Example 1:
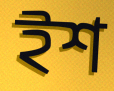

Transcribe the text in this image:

ইশ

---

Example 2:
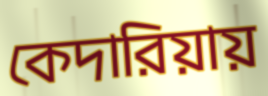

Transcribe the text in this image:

কেদারিয়ায়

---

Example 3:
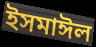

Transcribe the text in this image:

ইসমাঈল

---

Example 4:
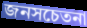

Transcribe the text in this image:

জনসচেতনা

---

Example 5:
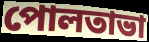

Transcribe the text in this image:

পোলতাভা